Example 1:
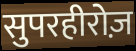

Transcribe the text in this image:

सुपरहीरोज़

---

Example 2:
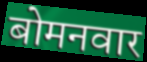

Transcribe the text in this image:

बोमनवार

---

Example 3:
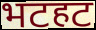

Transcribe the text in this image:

भटहट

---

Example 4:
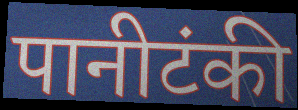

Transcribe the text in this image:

पानीटंकी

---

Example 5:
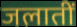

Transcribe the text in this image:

जलातीं